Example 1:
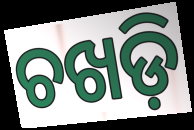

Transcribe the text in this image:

ଚଖଡ଼ି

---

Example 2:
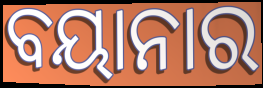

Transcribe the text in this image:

ବୟାନାର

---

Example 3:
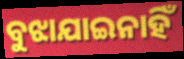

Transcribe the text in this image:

ବୁଝାଯାଇନାହିଁ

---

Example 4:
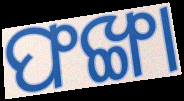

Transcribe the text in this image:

ଫଙ୍ଖା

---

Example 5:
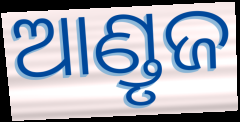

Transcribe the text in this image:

ଆଣ୍ଡୃଜ